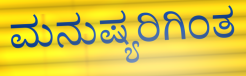
ಮನುಷ್ಯರಿಗಿಂತ